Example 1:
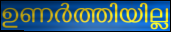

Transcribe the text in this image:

ഉണർത്തിയില്ല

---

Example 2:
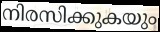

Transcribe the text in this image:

നിരസിക്കുകയും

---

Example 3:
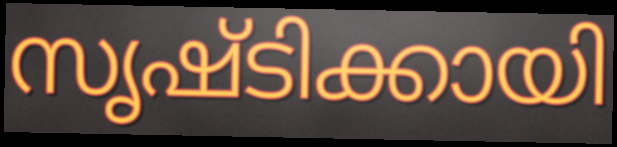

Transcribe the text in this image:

സൃഷ്ടിക്കായി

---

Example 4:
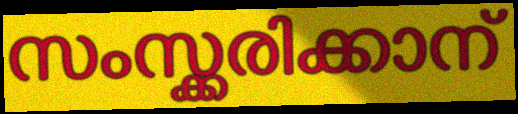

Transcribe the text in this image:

സംസ്ക്കരിക്കാന്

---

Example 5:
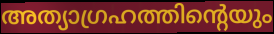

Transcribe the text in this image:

അത്യാഗ്രഹത്തിന്റെയും